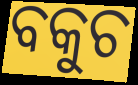
ବକୁଚ